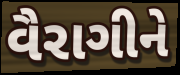
વૈરાગીને